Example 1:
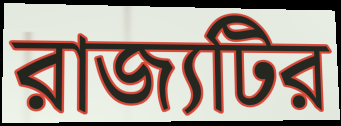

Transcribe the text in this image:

রাজ্যটির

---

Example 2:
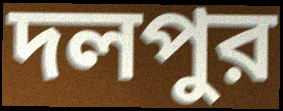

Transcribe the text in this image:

দলপুর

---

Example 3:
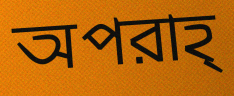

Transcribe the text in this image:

অপরাহ্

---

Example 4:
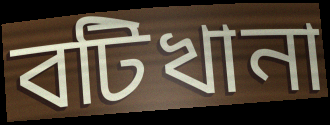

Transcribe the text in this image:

বটিখানা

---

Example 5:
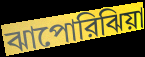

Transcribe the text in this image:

ঝাপোরিঝিয়া